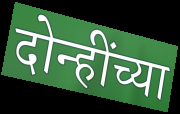
दोन्हींच्या